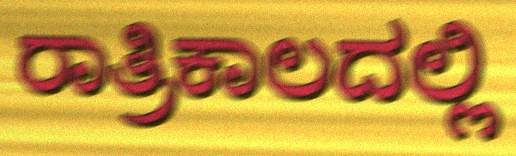
ರಾತ್ರಿಕಾಲದಲ್ಲಿ